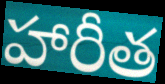
హారీత